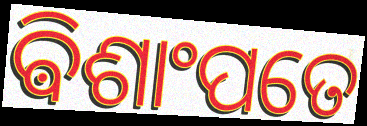
ଵିଶାଂପତେ